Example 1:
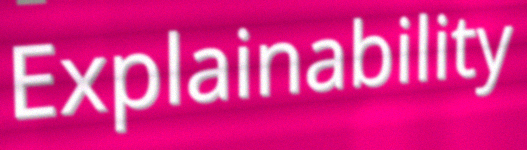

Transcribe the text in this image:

Explainability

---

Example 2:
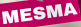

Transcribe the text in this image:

MESMA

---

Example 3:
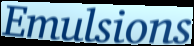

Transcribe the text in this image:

Emulsions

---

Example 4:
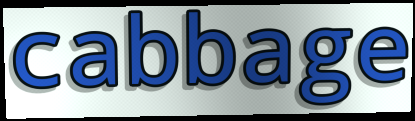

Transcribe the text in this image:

cabbage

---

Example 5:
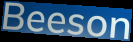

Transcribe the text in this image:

Beeson